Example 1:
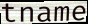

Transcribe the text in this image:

tname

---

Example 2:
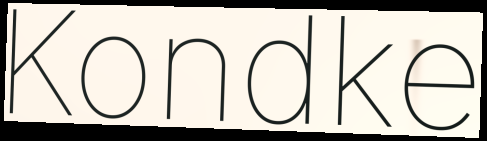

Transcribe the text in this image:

Kondke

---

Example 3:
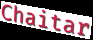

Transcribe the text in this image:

Chaitar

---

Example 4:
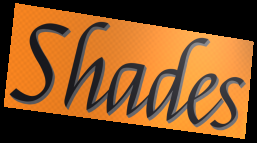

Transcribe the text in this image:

Shades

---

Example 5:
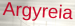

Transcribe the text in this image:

Argyreia